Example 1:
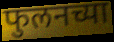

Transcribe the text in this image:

फुलनच्या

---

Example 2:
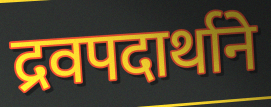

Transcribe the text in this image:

द्रवपदार्थाने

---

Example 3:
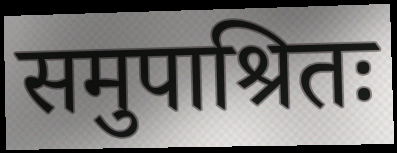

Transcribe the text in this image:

समुपाश्रितः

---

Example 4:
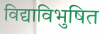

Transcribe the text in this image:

विद्याविभुषित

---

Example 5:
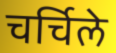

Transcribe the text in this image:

चर्चिले